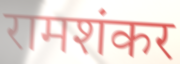
रामशंकर